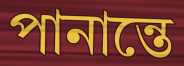
পানান্তে